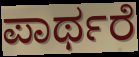
ಪಾರ್ಥರೆ